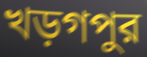
খড়গপুর